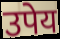
उपेय